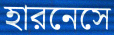
হারনেসে